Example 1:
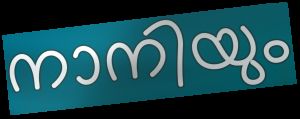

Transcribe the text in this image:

നാനിയും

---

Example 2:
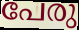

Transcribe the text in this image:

പേരു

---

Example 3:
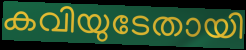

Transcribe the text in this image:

കവിയുടേതായി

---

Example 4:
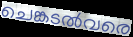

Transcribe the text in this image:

ചെങ്കടൽവരെ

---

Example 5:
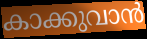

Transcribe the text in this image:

കാക്കുവാൻ